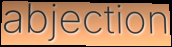
abjection